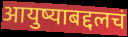
आयुष्याबद्दलचं